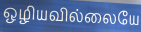
ஒழியவில்லையே